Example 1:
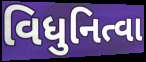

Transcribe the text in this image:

વિધુનિત્વા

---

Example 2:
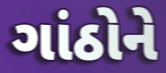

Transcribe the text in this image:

ગાંઠોને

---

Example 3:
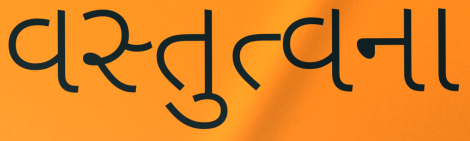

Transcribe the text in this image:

વસ્તુત્વના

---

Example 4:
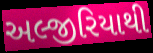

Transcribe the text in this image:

અલ્જીરિયાથી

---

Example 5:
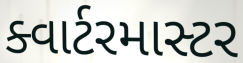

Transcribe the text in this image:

ક્વાર્ટરમાસ્ટર